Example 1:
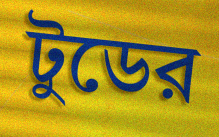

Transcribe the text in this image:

টুডের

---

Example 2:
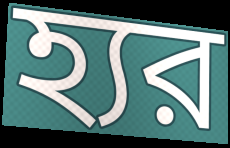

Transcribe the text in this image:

হ্যর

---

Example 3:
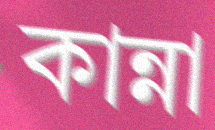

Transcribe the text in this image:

কান্না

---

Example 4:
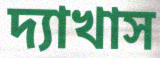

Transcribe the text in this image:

দ্যাখাস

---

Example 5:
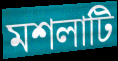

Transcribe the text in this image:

মশলাটি